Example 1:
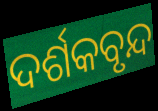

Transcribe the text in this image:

ଦର୍ଶକବୃନ୍ଦ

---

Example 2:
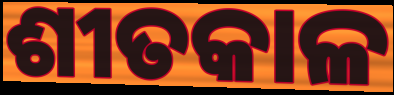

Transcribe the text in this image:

ଶୀତକାଳ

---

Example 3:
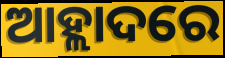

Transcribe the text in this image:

ଆହ୍ଲାଦରେ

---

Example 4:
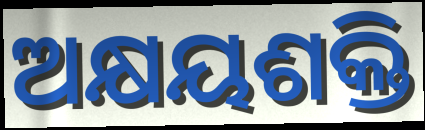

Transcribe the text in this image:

ଅକ୍ଷୟଶକ୍ତି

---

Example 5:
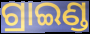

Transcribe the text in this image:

ଗ୍ରାଇଣ୍ଡ